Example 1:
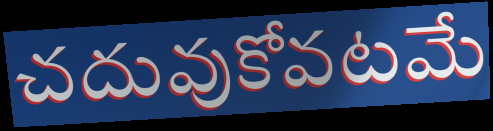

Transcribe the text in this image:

చదువుకోవటమే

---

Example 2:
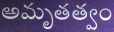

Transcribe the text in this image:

అమృతత్వం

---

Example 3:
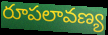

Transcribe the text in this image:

రూపలావణ్య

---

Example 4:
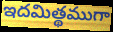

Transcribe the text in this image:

ఇదమిత్థముగా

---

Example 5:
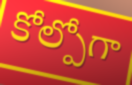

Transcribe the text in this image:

కోల్పోగా